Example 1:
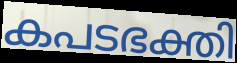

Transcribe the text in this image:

കപടഭക്തി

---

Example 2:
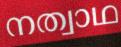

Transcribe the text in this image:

നത്വാഥ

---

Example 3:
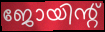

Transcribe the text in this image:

ജോയിന്റ്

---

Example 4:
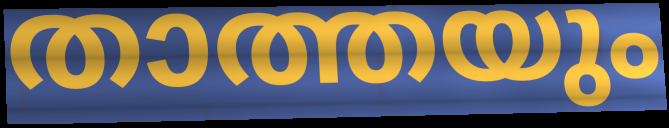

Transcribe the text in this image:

താത്തയും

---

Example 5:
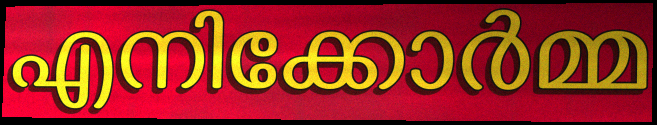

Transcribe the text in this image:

എനിക്കോർമ്മ